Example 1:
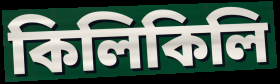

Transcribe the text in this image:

কিলিকিলি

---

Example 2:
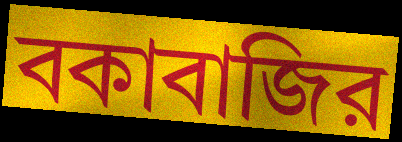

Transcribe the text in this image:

বকাবাজির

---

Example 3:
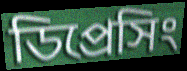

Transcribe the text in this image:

ডিপ্রেসিং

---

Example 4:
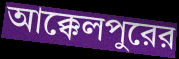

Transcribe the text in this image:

আক্কেলপুরের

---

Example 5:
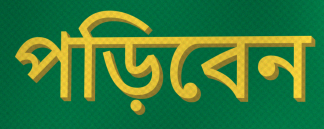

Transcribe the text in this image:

পড়িবেন